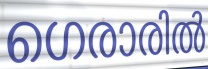
ഗെരാരിൽ